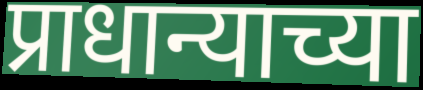
प्राधान्याच्या